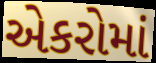
એકરોમાં